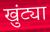
खुंट्या